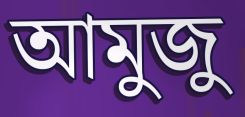
আমুজু